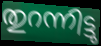
തുറന്നിട്ടു